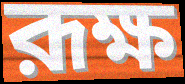
রূক্ষ